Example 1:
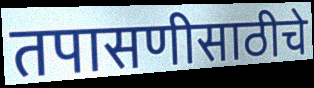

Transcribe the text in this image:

तपासणीसाठीचे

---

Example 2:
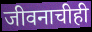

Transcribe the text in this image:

जीवनाचीही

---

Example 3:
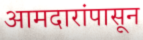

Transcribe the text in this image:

आमदारांपासून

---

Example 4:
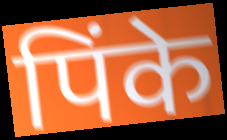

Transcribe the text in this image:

पिंके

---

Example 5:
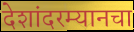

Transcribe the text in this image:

देशांदरम्यानचा